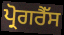
ਪ੍ਰੋਗਰੈੱਸ